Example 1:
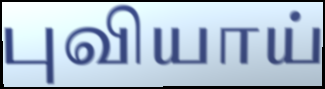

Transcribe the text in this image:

புவியாய்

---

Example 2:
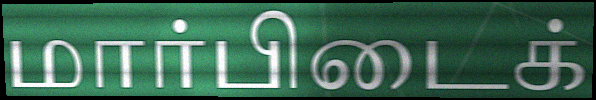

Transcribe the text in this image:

மார்பிடைக்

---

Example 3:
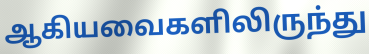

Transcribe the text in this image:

ஆகியவைகளிலிருந்து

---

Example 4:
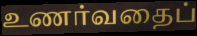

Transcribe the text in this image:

உணர்வதைப்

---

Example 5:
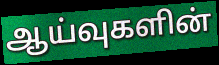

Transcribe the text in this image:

ஆய்வுகளின்